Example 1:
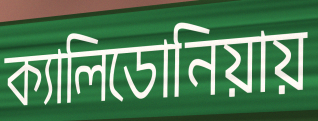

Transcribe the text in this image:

ক্যালিডোনিয়ায়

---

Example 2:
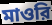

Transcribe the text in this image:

মাওরি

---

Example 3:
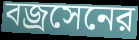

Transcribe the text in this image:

বজ্রসেনের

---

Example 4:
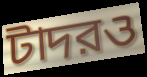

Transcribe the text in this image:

টাদরও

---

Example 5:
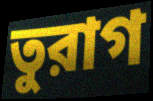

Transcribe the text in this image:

তুরাগ